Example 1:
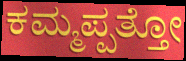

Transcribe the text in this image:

ಕಮ್ಮಪ್ಪತ್ತೋ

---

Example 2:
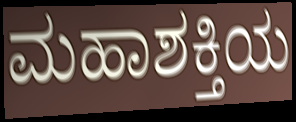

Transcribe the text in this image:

ಮಹಾಶಕ್ತಿಯ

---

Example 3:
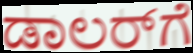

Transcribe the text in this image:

ಡಾಲರ್‌ಗೆ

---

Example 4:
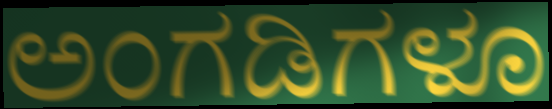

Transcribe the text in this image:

ಅಂಗಡಿಗಳೂ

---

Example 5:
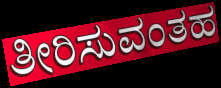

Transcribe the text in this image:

ತೀರಿಸುವಂತಹ